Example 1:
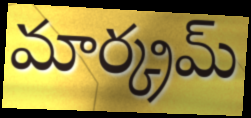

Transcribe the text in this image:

మార్క్రమ్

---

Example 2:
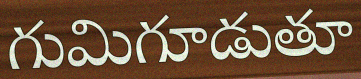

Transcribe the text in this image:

గుమిగూడుతూ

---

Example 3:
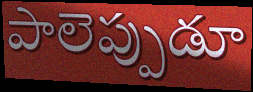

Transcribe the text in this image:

పాలెప్పుడూ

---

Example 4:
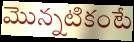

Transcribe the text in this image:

మొన్నటికంటే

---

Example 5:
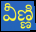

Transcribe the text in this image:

వీణ్ణి